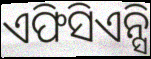
ଏଫିସିଏନ୍ସି